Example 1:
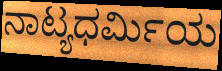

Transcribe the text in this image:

ನಾಟ್ಯಧರ್ಮಿಯ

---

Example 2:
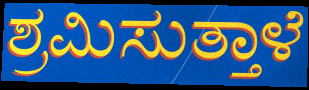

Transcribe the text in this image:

ಶ್ರಮಿಸುತ್ತಾಳೆ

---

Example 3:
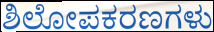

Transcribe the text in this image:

ಶಿಲೋಪಕರಣಗಳು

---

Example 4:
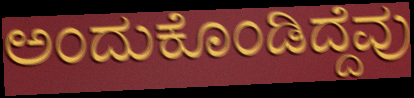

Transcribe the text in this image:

ಅಂದುಕೊಂಡಿದ್ದೆವು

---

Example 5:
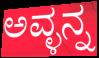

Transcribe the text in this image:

ಅವ್ಳನ್ನ